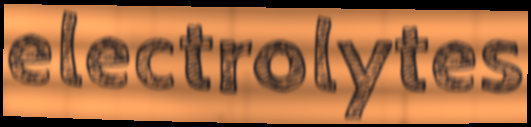
electrolytes